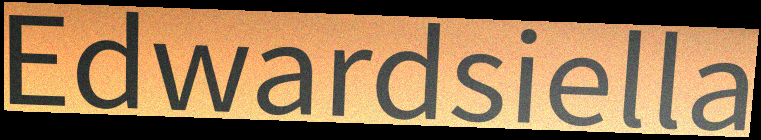
Edwardsiella